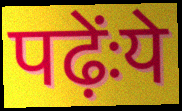
पढ़ेंःये